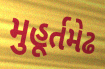
મુહૂર્તમેઢ